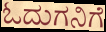
ಓದುಗನಿಗೆ